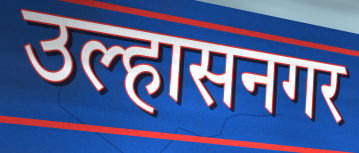
उल्हासनगर